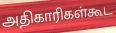
அதிகாரிகள்கூட